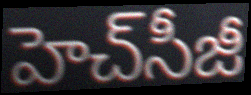
హెచ్‌సీజీ